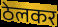
ठेलकर